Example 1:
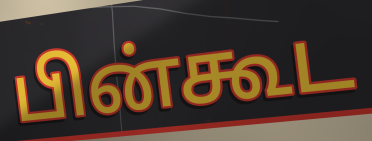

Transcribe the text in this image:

பின்கூட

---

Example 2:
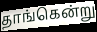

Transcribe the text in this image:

தாங்கென்று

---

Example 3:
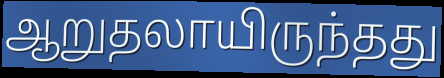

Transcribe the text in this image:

ஆறுதலாயிருந்தது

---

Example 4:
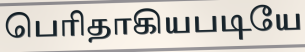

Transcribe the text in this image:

பெரிதாகியபடியே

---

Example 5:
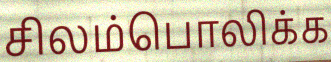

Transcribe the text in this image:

சிலம்பொலிக்க